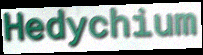
Hedychium